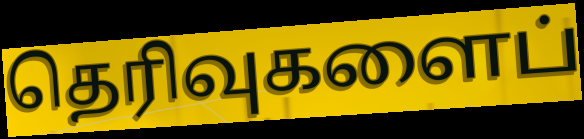
தெரிவுகளைப்